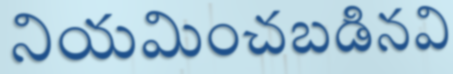
నియమించబడినవి